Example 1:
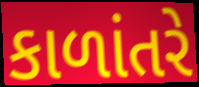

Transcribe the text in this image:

કાળાંતરે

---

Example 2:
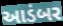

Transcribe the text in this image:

આડંબર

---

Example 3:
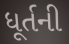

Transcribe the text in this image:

ધૂર્તની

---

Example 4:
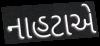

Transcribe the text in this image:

નાહટાએ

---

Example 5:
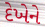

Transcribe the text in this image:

દેખેને